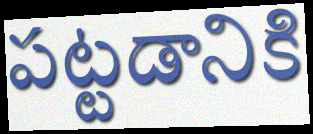
పట్టడానికి